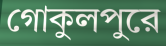
গোকুলপুরে